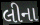
લીના